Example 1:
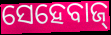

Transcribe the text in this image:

ସେହେବାଜ୍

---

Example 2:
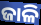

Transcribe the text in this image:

ଜାଳି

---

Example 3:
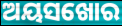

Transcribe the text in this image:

ଅୟସଖୋର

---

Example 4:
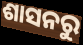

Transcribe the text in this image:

ଶାସନରୁ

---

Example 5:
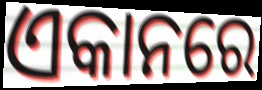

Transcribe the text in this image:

ଏକାନରେ